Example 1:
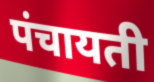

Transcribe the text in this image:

पंचायती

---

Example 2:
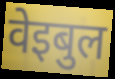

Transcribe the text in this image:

वेइबुल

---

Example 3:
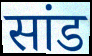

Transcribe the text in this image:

सांड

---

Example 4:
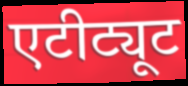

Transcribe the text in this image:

एटीट्यूट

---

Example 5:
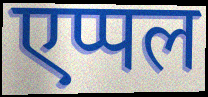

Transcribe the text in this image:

एप्पल